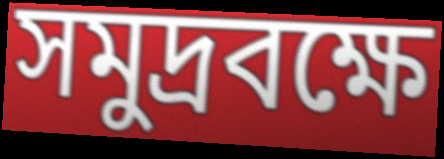
সমুদ্রবক্ষে